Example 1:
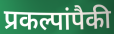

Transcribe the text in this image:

प्रकल्पांपैकी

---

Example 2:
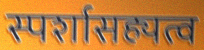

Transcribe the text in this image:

स्पर्शासह्यत्व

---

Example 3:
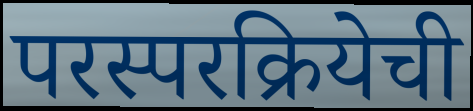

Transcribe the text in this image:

परस्परक्रियेची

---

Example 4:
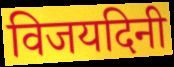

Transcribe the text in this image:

विजयदिनी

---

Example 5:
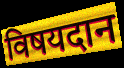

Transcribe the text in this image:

विषयदान